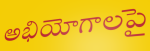
అభియోగాలపై